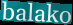
balako